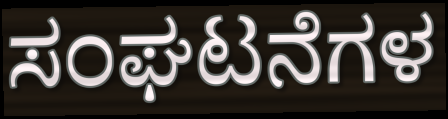
ಸಂಘಟನೆಗಳ